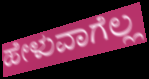
ಹೇಳುವಾಗೆಲ್ಲ